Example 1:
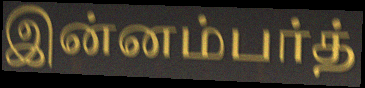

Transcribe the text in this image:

இன்னம்பர்த்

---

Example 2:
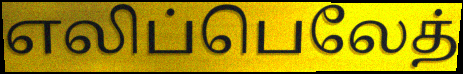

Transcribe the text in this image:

எலிப்பெலேத்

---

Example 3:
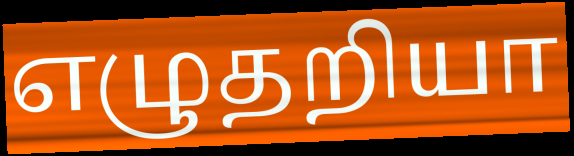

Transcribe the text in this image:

எழுதறியா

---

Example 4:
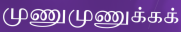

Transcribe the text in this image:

முணுமுணுக்கக்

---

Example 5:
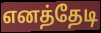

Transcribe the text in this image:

எனத்தேடி